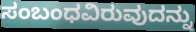
ಸಂಬಂಧವಿರುವುದನ್ನು